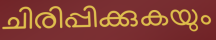
ചിരിപ്പിക്കുകയും